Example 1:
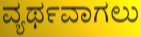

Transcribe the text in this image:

ವ್ಯರ್ಥವಾಗಲು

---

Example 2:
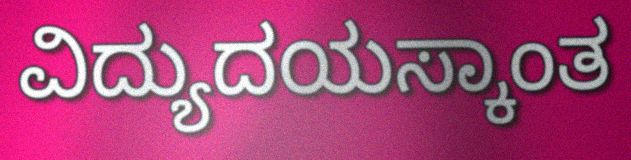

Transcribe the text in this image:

ವಿದ್ಯುದಯಸ್ಕಾಂತ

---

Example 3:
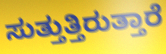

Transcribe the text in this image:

ಸುತ್ತುತ್ತಿರುತ್ತಾರೆ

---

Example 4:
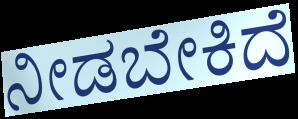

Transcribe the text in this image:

ನೀಡಬೇಕಿದೆ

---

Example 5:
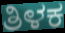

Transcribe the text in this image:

ತಿಳಕ